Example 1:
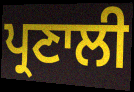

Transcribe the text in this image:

ਪ੍ਰਣਾਲੀ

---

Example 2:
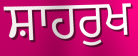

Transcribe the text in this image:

ਸ਼ਾਹਰੁਖ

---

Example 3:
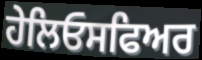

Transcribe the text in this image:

ਹੇਲਿਓਸਫਿਅਰ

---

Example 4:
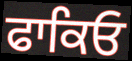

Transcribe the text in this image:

ਫਾਕਿਓ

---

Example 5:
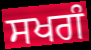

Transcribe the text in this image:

ਸਖਗੰ